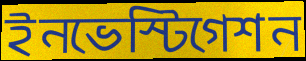
ইনভেস্টিগেশন